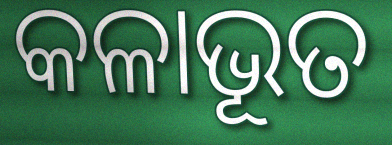
କଳାଭୂତ